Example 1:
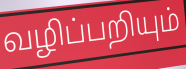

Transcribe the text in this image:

வழிப்பறியும்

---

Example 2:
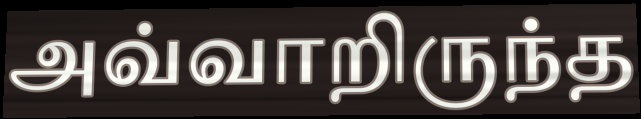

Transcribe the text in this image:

அவ்வாறிருந்த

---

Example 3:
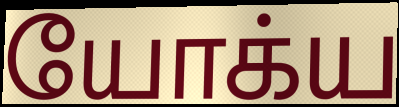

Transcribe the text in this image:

யோக்ய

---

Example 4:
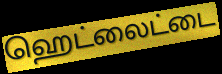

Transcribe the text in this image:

ஹெட்லைட்டை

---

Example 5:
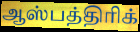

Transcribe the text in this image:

ஆஸ்பத்திரிக்